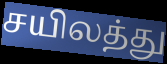
சயிலத்து